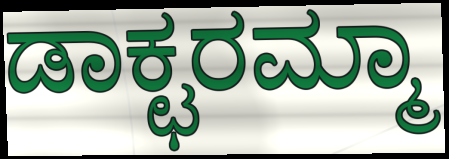
ಡಾಕ್ಟರಮ್ಮಾ